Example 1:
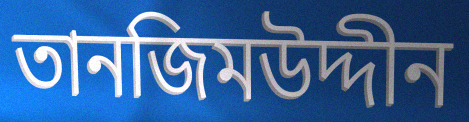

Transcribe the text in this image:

তানজিমউদ্দীন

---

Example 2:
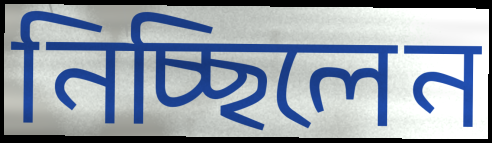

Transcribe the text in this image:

নিচ্ছিলেন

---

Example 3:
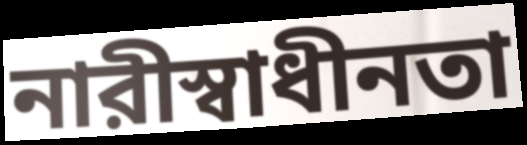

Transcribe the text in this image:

নারীস্বাধীনতা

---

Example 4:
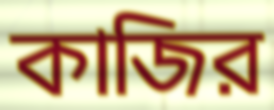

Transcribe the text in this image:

কাজির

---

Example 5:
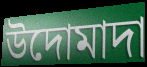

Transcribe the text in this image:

উদোমাদা